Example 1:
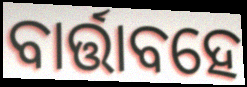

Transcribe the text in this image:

ବାର୍ତ୍ତାବହେ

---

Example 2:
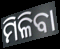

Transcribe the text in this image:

ମିଳିବା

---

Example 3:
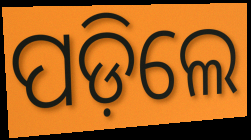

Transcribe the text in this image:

ପଡ଼ିଲେ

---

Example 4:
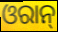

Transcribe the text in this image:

ଓରାନ୍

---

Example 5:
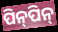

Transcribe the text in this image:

ପିନ୍‍ପିନ୍